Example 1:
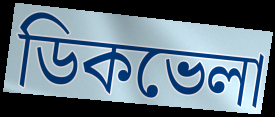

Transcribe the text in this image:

ডিকভেলা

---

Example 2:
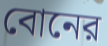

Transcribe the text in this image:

বোনের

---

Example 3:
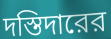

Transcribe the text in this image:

দস্তিদারের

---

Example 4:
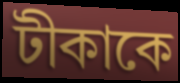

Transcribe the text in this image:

টীকাকে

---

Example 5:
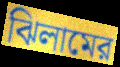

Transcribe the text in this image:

ঝিলামের